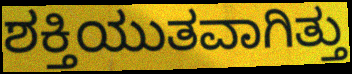
ಶಕ್ತಿಯುತವಾಗಿತ್ತು